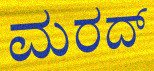
ಮರದ್